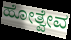
ಹೋತ್ವೇವ